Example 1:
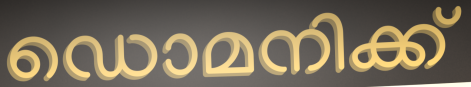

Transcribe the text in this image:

ഡൊമനിക്ക്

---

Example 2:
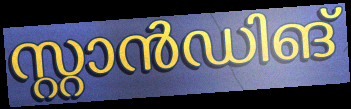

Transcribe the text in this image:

സ്റ്റാൻഡിങ്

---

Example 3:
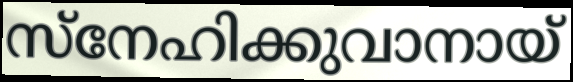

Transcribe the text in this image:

സ്നേഹിക്കുവാനായ്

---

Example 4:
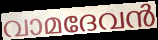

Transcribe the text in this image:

വാമദേവൻ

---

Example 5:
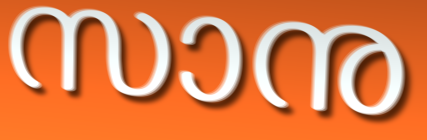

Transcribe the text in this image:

സാനു